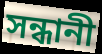
সন্ধানী